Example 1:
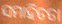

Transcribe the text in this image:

ସମାହିତତା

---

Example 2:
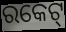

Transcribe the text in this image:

ରକେଟ୍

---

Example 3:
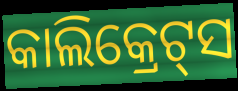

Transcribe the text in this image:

କାଲିକ୍ରେଟ୍‍ସ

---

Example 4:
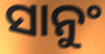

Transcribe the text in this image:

ସାନୁଂ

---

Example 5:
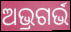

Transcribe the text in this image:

ଅଭ୍ରଗର୍ଭ